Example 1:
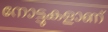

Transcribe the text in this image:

നോട്ടുകളാണ്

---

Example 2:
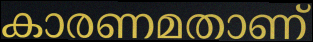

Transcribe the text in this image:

കാരണമതാണ്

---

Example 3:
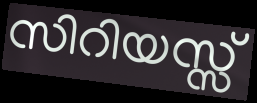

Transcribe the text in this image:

സിറിയസ്സ്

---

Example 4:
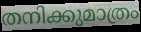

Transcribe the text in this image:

തനിക്കുമാത്രം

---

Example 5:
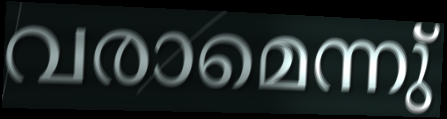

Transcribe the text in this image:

വരാമെന്നു്